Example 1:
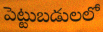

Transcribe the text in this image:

పెట్టుబడులలో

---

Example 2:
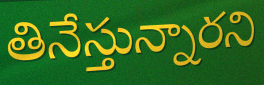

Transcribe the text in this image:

తినేస్తున్నారని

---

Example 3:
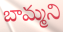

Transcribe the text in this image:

బామ్మని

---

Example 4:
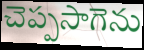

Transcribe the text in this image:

చెప్పసాగెను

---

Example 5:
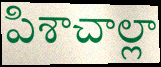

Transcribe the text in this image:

పిశాచాల్లా